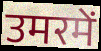
उमरमें